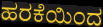
ಹರಕೆಯಿಂದ